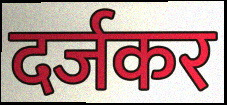
दर्जकर